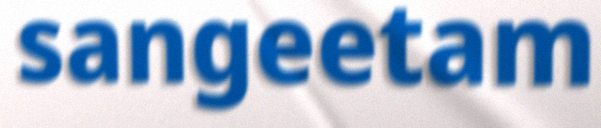
sangeetam